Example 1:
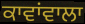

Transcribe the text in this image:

ਕਾਵਾਂਵਾਲਾ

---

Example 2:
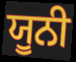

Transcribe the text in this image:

ਯੂਨੀ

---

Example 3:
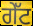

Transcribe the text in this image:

ਗੇੱਟ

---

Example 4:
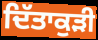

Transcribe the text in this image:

ਦਿੱਤਾਕੁੜੀ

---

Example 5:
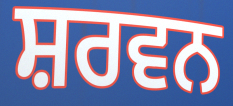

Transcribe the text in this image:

ਸ਼ਰਵਨ